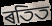
ৰতিত